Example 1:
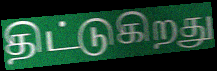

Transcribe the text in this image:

திட்டுகிறது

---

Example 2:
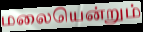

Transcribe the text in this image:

மலையென்றும்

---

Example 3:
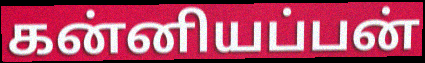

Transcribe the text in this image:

கன்னியப்பன்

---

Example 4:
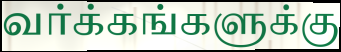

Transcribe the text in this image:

வர்க்கங்களுக்கு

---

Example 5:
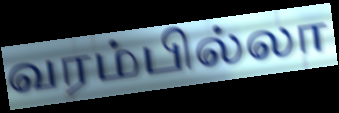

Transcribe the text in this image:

வரம்பில்லா